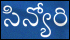
సిన్యోరి